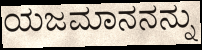
ಯಜಮಾನನನ್ನು